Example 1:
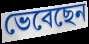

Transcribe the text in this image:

ভেবেছেন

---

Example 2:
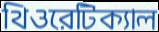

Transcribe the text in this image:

থিওরেটিক্যাল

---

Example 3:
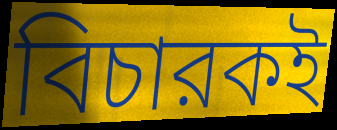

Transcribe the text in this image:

বিচারকই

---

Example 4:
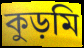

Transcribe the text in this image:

কুড়মি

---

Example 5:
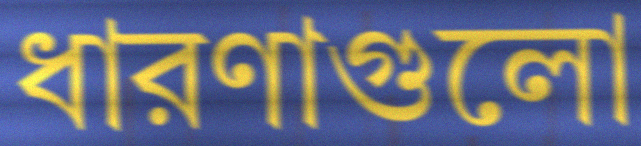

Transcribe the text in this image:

ধারণাগুলো